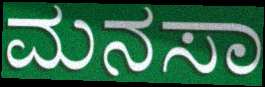
ಮನಸಾ